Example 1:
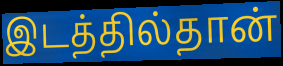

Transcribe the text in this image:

இடத்தில்தான்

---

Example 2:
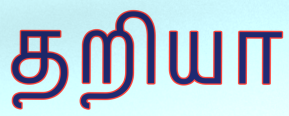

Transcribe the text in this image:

தறியா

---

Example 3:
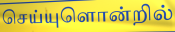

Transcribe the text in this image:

செய்யுளொன்றில்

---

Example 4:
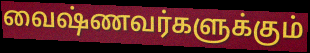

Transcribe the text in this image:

வைஷ்ணவர்களுக்கும்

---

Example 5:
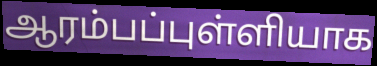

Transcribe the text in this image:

ஆரம்பப்புள்ளியாக